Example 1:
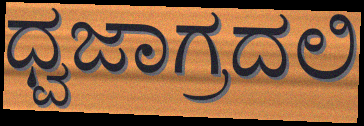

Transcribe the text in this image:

ಧ್ವಜಾಗ್ರದಲಿ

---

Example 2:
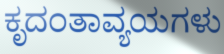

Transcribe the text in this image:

ಕೃದಂತಾವ್ಯಯಗಳು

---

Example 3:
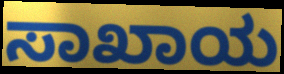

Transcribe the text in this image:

ಸಾಖಾಯ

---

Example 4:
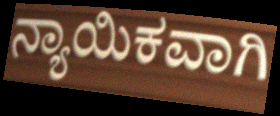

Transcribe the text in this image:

ನ್ಯಾಯಿಕವಾಗಿ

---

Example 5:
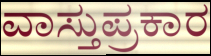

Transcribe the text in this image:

ವಾಸ್ತುಪ್ರಕಾರ